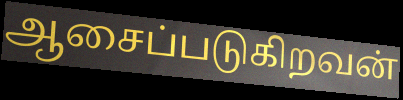
ஆசைப்படுகிறவன்